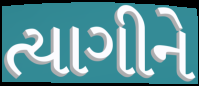
ત્યાગીને